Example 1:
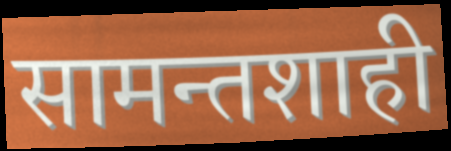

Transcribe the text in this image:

सामन्तशाही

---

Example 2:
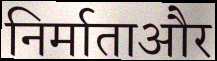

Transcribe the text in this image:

निर्माताऔर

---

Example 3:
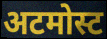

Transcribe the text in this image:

अटमोस्ट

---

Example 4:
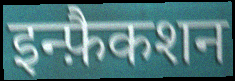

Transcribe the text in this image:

इन्फ़ैकशन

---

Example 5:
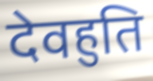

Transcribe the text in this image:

देवहुति